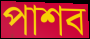
পাশব